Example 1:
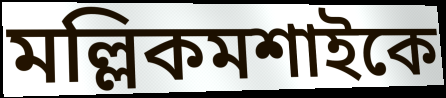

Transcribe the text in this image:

মল্লিকমশাইকে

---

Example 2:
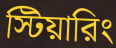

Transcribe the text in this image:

স্টিয়ারিং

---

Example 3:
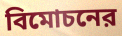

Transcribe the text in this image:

বিমোচনের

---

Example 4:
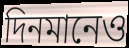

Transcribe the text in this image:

দিনমানেও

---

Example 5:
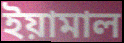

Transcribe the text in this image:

ইয়ামাল